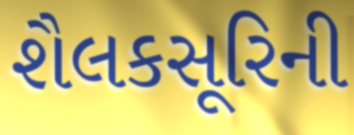
શૈલકસૂરિની